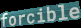
forcible